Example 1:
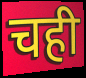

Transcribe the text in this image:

चही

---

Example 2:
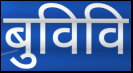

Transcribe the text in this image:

बुविवि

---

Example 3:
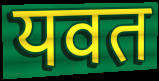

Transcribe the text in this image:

यवत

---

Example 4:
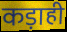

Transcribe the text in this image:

कड़ाही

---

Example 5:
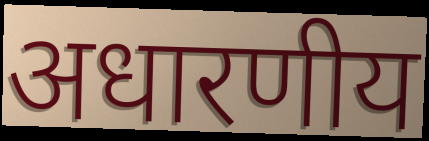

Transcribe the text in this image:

अधारणीय